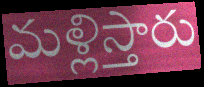
మళ్లిస్తారు